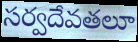
సర్వదేవతలూ